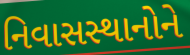
નિવાસસ્થાનોને